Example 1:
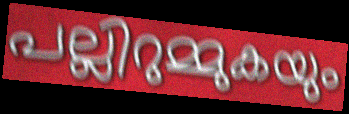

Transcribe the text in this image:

പല്ലിറുമ്മുകയും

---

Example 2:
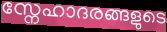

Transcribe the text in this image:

സ്നേഹാദരങ്ങളുടെ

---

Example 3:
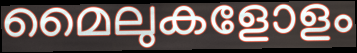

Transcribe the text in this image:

മൈലുകളോളം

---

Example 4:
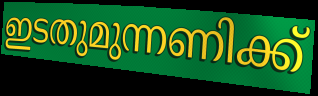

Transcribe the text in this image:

ഇടതുമുന്നണിക്ക്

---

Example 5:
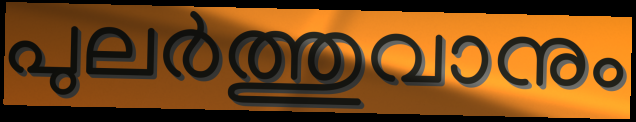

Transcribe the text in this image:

പുലർത്തുവാനും